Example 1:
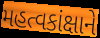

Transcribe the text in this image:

મહત્વકાંક્ષાને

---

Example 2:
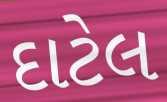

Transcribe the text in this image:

દાટેલ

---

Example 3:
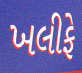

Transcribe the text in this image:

ખલીફે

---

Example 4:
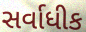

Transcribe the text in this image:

સર્વાધીક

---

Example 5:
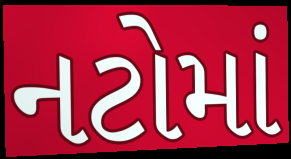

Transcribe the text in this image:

નટોમાં